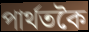
পাৰ্থতকৈ